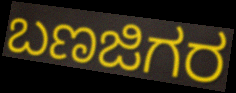
ಬಣಜಿಗರ